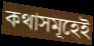
কথাসমূহেই